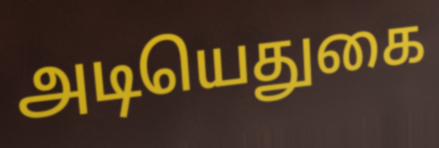
அடியெதுகை